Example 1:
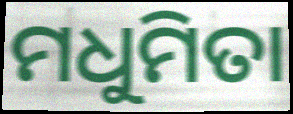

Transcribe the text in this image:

ମଧୁମିତା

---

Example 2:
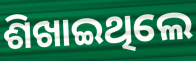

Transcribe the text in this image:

ଶିଖାଇଥିଲେ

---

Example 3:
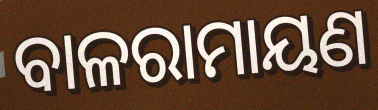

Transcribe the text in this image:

ବାଳରାମାୟଣ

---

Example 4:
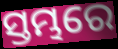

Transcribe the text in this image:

ସ୍ତମ୍ଭରେ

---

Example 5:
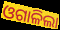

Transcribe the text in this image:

ଓଗାଳିଲା